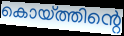
കൊയ്ത്തിന്റെ